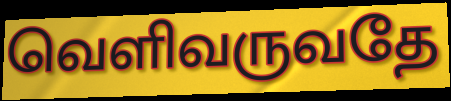
வெளிவருவதே